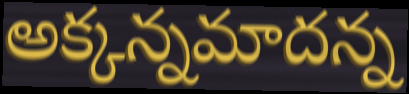
అక్కన్నమాదన్న